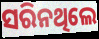
ସରିନଥିଲେ